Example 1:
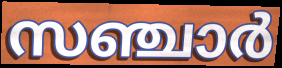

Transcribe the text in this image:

സഞ്ചാർ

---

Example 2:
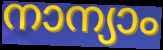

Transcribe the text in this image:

നാന്യാം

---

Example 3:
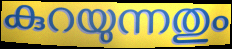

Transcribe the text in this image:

കുറയുന്നതും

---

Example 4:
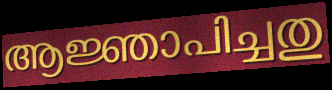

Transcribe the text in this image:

ആജ്ഞാപിച്ചതു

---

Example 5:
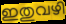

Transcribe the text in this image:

ഇതുവഴി